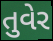
તુવેર